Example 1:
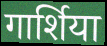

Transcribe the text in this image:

गार्शिया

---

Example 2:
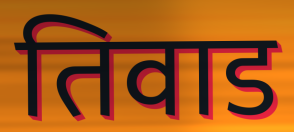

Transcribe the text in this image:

तिवाड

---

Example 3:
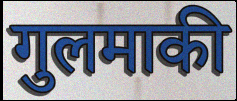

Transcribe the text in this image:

गुलमाकी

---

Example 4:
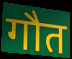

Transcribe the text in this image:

गौत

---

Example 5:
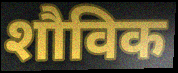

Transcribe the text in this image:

शौविक